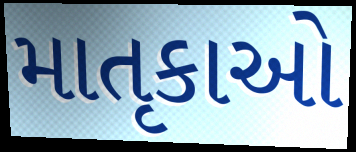
માતૃકાઓ